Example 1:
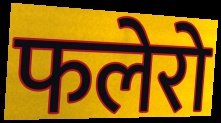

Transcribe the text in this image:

फलेरो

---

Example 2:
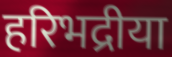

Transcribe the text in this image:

हरिभद्रीया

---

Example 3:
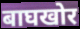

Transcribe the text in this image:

बाघखोर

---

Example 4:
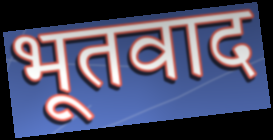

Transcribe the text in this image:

भूतवाद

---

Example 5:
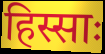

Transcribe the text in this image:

हिस्साः